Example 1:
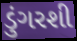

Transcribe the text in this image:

ડુંગરશી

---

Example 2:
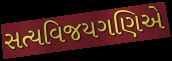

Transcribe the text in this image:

સત્યવિજયગણિએ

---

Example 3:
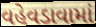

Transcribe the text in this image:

વહેવડાવામાં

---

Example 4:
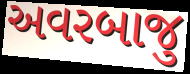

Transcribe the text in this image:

અવરબાજુ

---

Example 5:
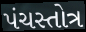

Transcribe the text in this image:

પંચસ્તોત્ર